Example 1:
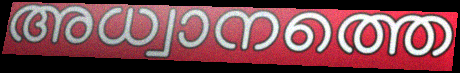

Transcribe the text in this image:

അധ്വാനത്തെ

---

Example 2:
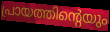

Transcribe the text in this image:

പ്രായത്തിന്റെയും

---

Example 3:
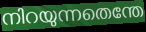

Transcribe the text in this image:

നിറയുന്നതെന്തേ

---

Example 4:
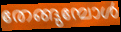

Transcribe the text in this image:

തേങ്ങുമ്പോൾ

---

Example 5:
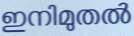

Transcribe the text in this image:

ഇനിമുതൽ